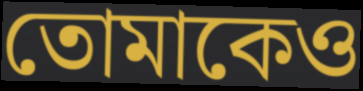
তোমাকেও